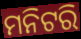
ମନିଟରି